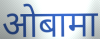
ओबामा